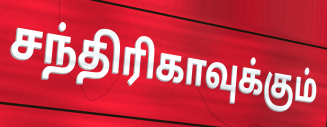
சந்திரிகாவுக்கும்